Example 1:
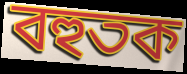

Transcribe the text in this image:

বহুতক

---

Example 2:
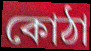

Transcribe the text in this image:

কোঠা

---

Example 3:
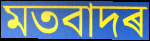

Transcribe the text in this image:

মতবাদৰ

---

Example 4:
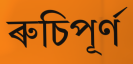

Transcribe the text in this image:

ৰুচিপূৰ্ণ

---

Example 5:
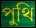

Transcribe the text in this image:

পুথি